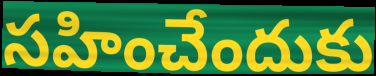
సహించేందుకు